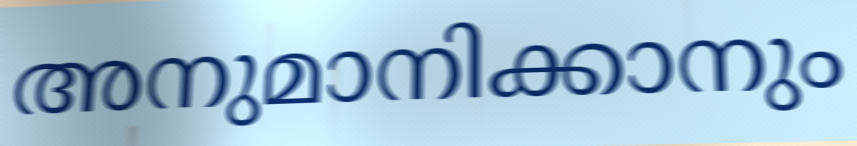
അനുമാനിക്കാനും